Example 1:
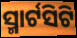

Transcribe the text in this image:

ସ୍ମାର୍ଟସିଟି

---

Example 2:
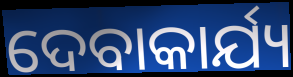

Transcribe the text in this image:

ଦେବାକାର୍ଯ୍ୟ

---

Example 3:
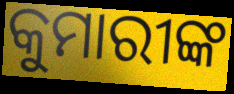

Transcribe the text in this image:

କୁମାରୀଙ୍କ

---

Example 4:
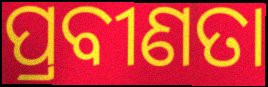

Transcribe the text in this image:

ପ୍ରବୀଣତା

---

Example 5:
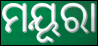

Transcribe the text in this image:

ମୟୂରା